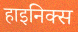
हाइनिक्स